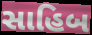
સાહિબ